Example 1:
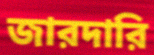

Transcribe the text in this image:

জারদারি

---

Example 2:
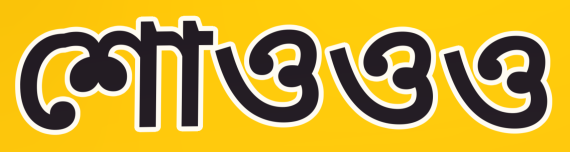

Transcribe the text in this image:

শোওওও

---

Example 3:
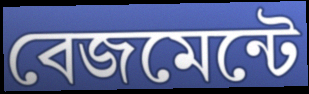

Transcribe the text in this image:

বেজমেন্টে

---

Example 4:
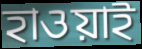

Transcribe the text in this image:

হাওয়াই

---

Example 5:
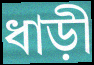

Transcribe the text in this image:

ধাড়ী